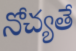
నోచ్యతే